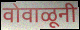
वोवाळूनी